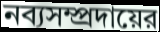
নব্যসম্প্রদায়ের